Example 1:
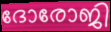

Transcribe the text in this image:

ദോരോജി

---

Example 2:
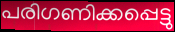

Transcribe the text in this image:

പരിഗണിക്കപ്പെട്ടു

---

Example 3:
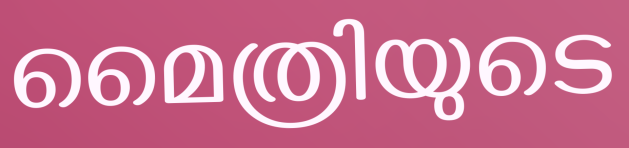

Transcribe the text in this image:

മൈത്രിയുടെ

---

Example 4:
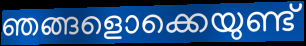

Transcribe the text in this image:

ഞങ്ങളൊക്കെയുണ്ട്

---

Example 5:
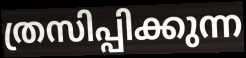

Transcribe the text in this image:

ത്രസിപ്പിക്കുന്ന